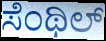
ಸೆಂಥಿಲ್